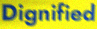
Dignified